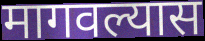
मागवल्यास